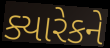
ક્યારેકને